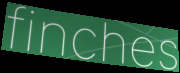
finches